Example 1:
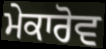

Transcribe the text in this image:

ਮੇਕਾਰੋਵ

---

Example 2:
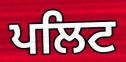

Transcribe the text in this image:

ਪਲਿਟ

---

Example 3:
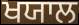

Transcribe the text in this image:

ਖਯਾਲ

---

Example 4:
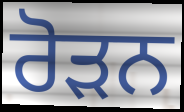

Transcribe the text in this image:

ਰੋੜਨ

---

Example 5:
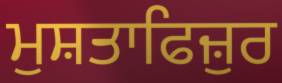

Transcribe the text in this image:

ਮੁਸ਼ਤਾਫਿਜ਼ੁਰ